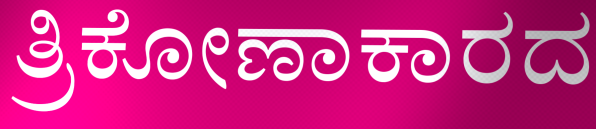
ತ್ರಿಕೋಣಾಕಾರದ